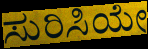
ಸುರಿಸಿಯೇ